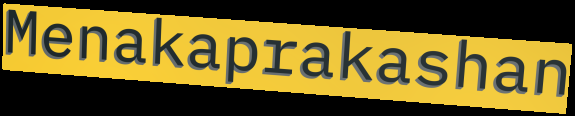
Menakaprakashan